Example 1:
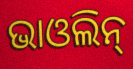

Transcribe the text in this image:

ଭାଓଲିନ୍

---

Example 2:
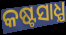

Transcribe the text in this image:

କଷ୍ଟସାଧ୍ଯ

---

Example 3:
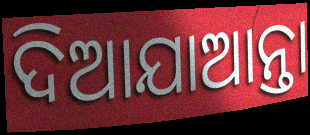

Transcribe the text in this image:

ଦିଆଯାଆନ୍ତା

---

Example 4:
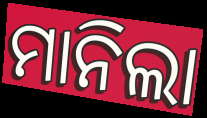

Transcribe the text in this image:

ମାନିଲା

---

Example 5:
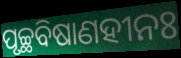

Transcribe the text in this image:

ପୃଚ୍ଛବିଷାଣହୀନଃ